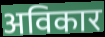
अविकार